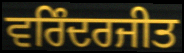
ਵਰਿੰਦਰਜੀਤ